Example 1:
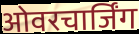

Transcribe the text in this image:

ओवरचार्जिंग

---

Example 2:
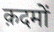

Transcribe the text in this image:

क़दमों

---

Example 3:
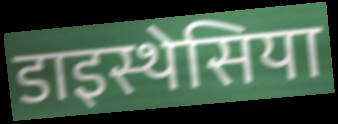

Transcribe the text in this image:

डाइस्थेसिया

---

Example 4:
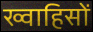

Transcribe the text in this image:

ख्वाहिसों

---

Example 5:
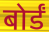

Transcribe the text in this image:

बोर्डं